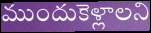
ముందుకెళ్లాలని